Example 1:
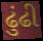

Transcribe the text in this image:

ઢુંઢી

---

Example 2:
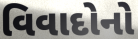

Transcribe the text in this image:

વિવાદોનો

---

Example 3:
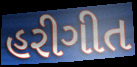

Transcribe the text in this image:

હરીગીત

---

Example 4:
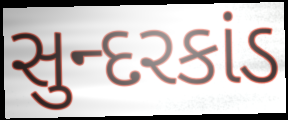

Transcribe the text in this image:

સુન્દરકાંડ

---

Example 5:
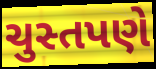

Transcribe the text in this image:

ચુસ્તપણે